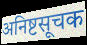
अनिष्टसूचक